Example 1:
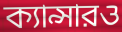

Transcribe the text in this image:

ক্যান্সারও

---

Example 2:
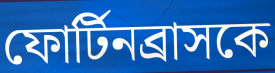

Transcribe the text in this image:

ফোর্টিনব্রাসকে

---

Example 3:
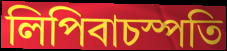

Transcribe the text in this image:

লিপিবাচস্পতি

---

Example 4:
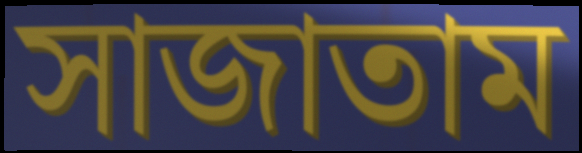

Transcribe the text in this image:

সাজাতাম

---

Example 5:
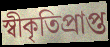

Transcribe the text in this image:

স্বীকৃতিপ্রাপ্ত